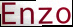
Enzo